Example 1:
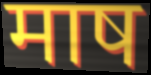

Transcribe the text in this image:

माष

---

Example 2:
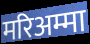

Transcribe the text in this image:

मरिअम्मा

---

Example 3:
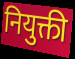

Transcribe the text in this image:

नियुक्ती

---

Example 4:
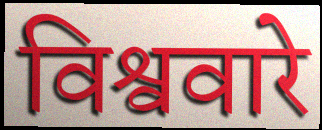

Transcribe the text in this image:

विश्ववारे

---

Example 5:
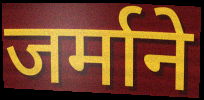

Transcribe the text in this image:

जर्माने